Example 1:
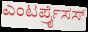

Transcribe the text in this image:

ಎಂಟರ್ಪ್ರೈಸಸ್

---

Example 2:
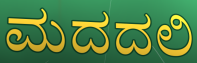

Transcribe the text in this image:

ಮದದಲಿ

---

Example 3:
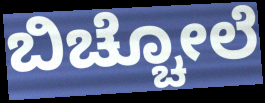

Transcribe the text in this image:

ಬಿಚ್ಚೋಲೆ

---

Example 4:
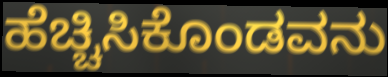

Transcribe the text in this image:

ಹೆಚ್ಚಿಸಿಕೊಂಡವನು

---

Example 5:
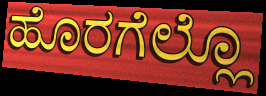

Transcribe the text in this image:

ಹೊರಗೆಲ್ಲೊ